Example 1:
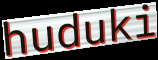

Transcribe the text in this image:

huduki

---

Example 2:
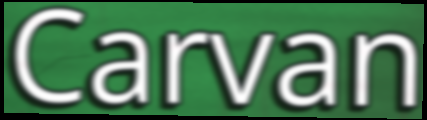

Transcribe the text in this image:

Carvan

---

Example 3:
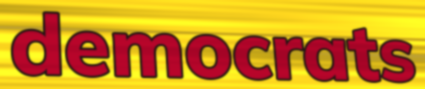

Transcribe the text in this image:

democrats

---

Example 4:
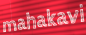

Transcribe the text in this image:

mahakavi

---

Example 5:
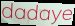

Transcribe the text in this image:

dadaye